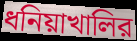
ধনিয়াখালির